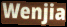
Wenjia